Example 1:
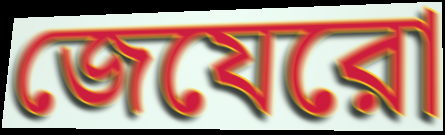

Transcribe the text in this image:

জেযেরো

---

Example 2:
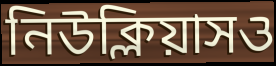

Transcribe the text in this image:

নিউক্লিয়াসও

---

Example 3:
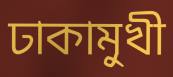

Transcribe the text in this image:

ঢাকামুখী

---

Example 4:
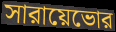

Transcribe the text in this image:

সারায়েভোর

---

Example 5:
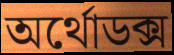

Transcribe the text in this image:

অর্থোডক্স